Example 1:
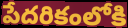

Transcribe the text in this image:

పేదరికంలోకి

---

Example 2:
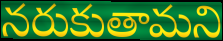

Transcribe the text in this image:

నరుకుతామని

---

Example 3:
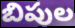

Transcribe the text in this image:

బిపుల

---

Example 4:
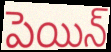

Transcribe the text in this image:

పెయిన్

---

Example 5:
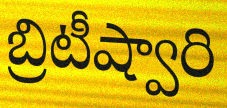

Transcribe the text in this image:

బ్రిటీష్వారి